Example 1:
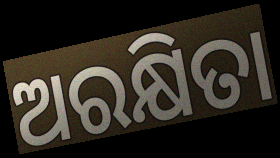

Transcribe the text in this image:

ଅରକ୍ଷିତା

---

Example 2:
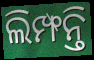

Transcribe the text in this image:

ଲିମ୍ଫନ୍ତି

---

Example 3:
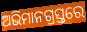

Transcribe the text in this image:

ଅଭିମାନଗ୍ରସ୍ତରେ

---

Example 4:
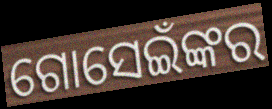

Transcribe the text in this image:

ଗୋସେଇଁଙ୍କର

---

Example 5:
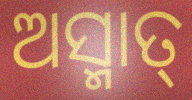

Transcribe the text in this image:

ଅସ୍ମାତ୍